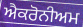
ਐਕਰੋਨੀਅਮ